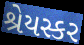
શ્રેયસ્કર